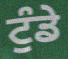
ਟੁੰਡੇ